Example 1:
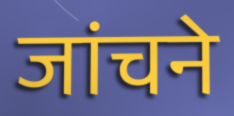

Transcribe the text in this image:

जांचने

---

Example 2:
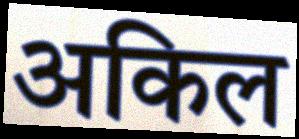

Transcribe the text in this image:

अकिल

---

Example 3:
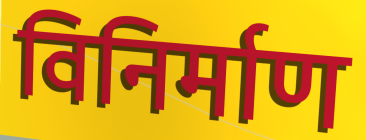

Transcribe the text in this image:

विनिर्माण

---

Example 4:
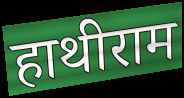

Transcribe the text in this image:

हाथीराम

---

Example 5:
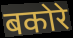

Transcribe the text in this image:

बकोरे